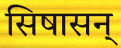
सिषासन्